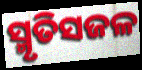
ସ୍ମୃତିସଜଳ